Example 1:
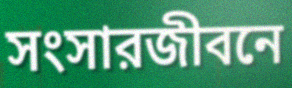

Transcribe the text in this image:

সংসারজীবনে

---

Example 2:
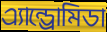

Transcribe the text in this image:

এ্যান্ড্রোমিডা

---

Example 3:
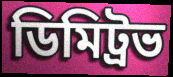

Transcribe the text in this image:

ডিমিট্রভ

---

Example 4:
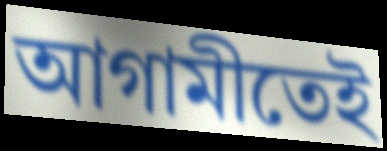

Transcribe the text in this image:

আগামীতেই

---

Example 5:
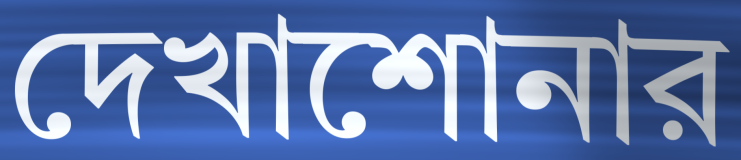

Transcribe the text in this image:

দেখাশোনার